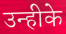
उन्हीके